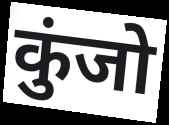
कुंजो